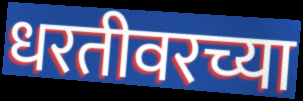
धरतीवरच्या